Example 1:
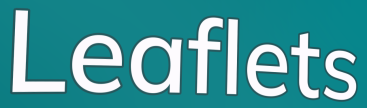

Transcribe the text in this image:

Leaflets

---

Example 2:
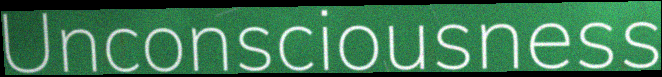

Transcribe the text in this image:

Unconsciousness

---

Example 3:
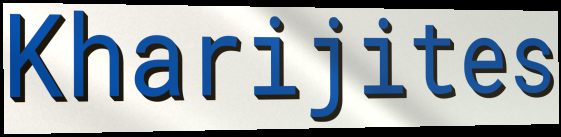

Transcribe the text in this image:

Kharijites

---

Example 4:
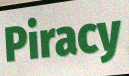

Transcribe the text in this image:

Piracy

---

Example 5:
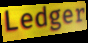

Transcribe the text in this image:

Ledger